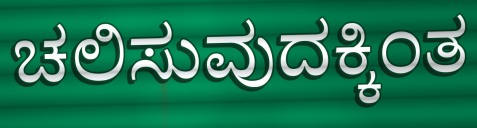
ಚಲಿಸುವುದಕ್ಕಿಂತ